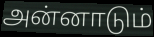
அன்னாடும்